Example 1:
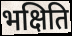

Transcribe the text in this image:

भक्षिति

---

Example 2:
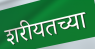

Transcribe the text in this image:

शरीयतच्या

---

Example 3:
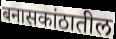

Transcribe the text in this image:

बनासकांठातील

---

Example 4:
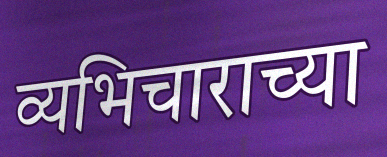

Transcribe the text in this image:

व्यभिचाराच्या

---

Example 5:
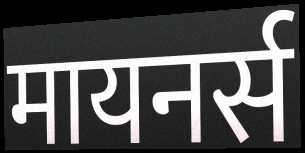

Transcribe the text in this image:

मायनर्स